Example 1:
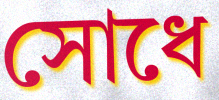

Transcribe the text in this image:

সোধে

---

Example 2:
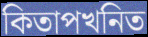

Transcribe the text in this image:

কিতাপখনিত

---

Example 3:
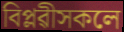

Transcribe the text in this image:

বিপ্লৱীসকলে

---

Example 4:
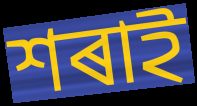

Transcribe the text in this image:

শৰাই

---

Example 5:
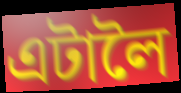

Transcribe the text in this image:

এটালৈ